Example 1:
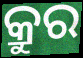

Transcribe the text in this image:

କ୍ରୁର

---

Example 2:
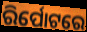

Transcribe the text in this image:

ରିର୍ପୋଟରେ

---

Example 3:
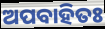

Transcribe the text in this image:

ଅପବାହିତଃ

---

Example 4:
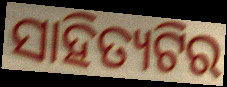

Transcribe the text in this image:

ସାହିତ୍ୟଟିର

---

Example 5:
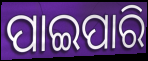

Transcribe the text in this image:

ପାଇପାରି